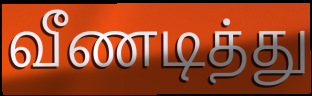
வீணடித்து